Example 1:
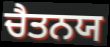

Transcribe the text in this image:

ਚੈਤਨਯ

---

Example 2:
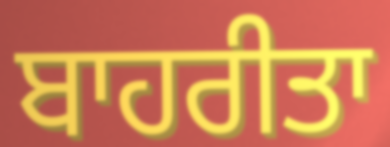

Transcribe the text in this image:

ਬਾਹਰੀਤਾ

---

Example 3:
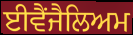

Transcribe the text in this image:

ਈਵੈਂਜੈਲਿਅਮ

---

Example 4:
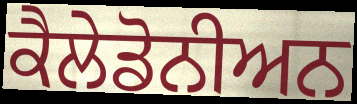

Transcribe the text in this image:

ਕੈਲੇਡੋਨੀਅਨ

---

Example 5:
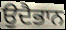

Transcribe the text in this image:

ਉਦੈਭਾਨ